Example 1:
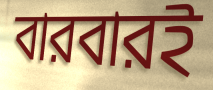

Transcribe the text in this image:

বারবারই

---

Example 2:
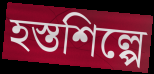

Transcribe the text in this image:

হস্তশিল্পে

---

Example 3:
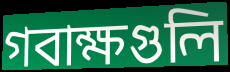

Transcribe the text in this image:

গবাক্ষগুলি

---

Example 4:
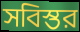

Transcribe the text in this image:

সবিস্তর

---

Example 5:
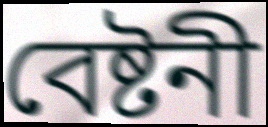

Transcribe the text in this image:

বেষ্টনী